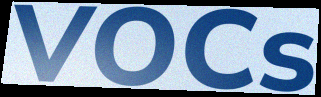
VOCs